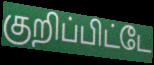
குறிப்பிட்டே